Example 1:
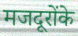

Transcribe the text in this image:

मजदूरोंके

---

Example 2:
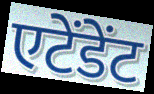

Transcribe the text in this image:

एटेंडेंट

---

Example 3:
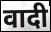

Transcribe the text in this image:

वादी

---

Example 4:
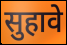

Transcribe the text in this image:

सुहावे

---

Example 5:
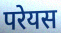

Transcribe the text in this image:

परेयस